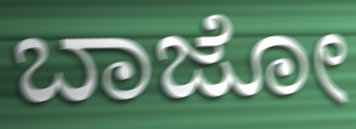
ಬಾಜೋ